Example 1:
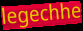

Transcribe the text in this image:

legechhe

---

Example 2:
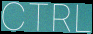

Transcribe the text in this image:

CTRL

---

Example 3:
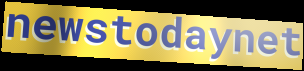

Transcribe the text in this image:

newstodaynet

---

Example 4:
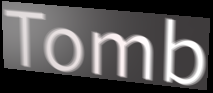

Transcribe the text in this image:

Tomb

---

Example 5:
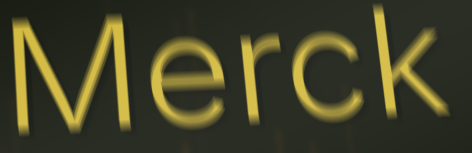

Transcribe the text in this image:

Merck